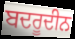
ਬਦਰੂਦੀਨ